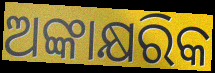
ଅଙ୍କାକ୍ଷରିକ